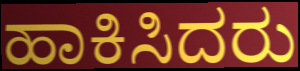
ಹಾಕಿಸಿದರು